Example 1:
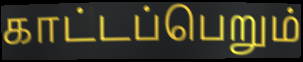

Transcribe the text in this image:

காட்டப்பெறும்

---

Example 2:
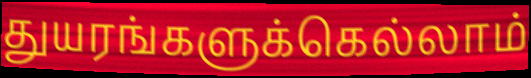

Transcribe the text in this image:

துயரங்களுக்கெல்லாம்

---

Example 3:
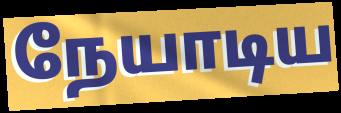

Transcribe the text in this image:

நேயாடிய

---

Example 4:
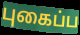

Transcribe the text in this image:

புகைப்ப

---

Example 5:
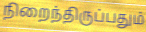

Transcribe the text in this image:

நிறைந்திருப்பதும்